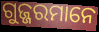
ଗୁଜ୍ଜରମାନେ